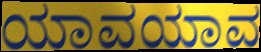
ಯಾವಯಾವ